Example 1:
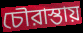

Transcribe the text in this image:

চৌরাস্তায়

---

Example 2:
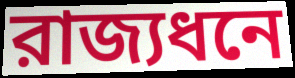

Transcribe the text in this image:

রাজ্যধনে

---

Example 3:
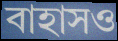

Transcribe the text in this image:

বাহাসও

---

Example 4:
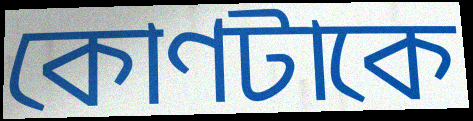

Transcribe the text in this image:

কোণটাকে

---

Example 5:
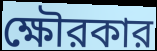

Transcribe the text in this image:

ক্ষৌরকার